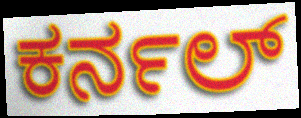
ಕರ್ನಲ್